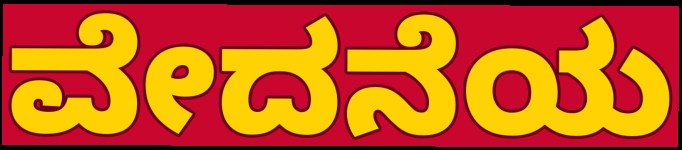
ವೇದನೆಯ